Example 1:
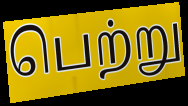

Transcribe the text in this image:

பெற்று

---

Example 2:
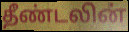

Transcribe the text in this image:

தீண்டலின்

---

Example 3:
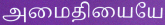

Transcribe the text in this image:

அமைதியையே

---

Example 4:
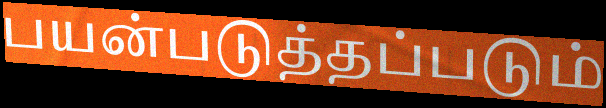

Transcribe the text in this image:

பயன்படுத்தப்படும்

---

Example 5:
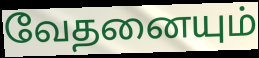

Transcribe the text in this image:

வேதனையும்